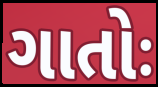
ગાતોઃ